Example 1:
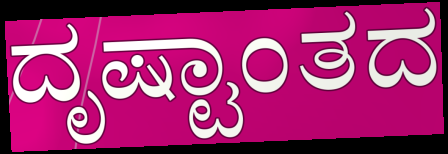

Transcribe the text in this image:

ದೃಷ್ಟಾಂತದ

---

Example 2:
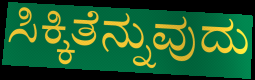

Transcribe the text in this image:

ಸಿಕ್ಕಿತೆನ್ನುವುದು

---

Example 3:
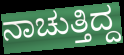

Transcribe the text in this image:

ನಾಚುತ್ತಿದ್ದ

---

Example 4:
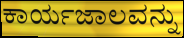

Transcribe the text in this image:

ಕಾರ್ಯಜಾಲವನ್ನು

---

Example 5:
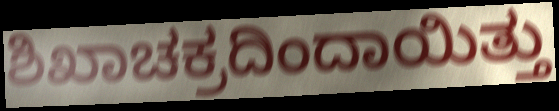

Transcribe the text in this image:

ಶಿಖಾಚಕ್ರದಿಂದಾಯಿತ್ತು